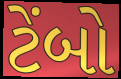
ટેંબો